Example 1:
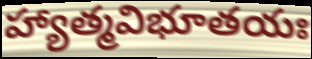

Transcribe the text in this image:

హ్యాత్మవిభూతయః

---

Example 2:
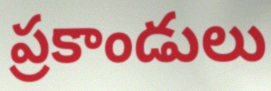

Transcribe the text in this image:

ప్రకాండులు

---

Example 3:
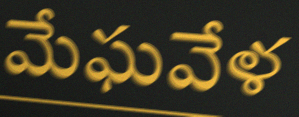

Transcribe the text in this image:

మేఘవేళ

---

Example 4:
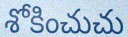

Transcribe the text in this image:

శోకించుచు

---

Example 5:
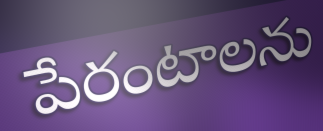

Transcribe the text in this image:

పేరంటాలను